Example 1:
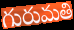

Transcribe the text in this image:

గురుమతి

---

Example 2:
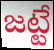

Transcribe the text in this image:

జట్టే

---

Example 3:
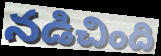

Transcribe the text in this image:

నడిచింది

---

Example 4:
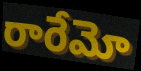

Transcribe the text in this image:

రారేమో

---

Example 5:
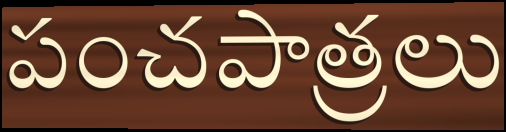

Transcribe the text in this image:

పంచపాత్రలు